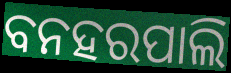
ବନହରପାଲି